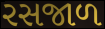
રસજાળ